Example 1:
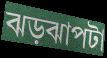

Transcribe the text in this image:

ঝড়ঝাপটা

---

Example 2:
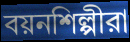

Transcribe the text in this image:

বয়নশিল্পীরা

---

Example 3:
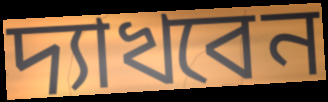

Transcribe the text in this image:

দ্যাখবেন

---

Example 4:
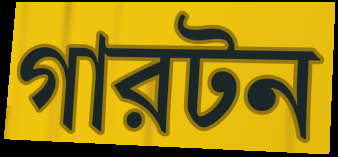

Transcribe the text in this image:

গারটন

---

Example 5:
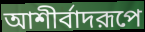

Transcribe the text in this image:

আশীর্বাদরূপে